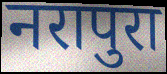
नरापुरा